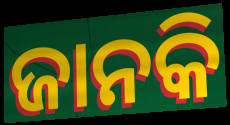
ଜାନକି